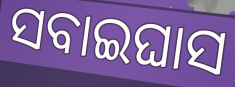
ସବାଇଘାସ